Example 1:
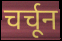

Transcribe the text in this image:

चर्चून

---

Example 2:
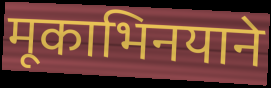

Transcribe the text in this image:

मूकाभिनयाने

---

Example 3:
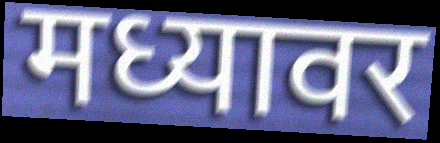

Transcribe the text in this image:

मध्यावर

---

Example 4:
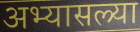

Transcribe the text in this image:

अभ्यासल्या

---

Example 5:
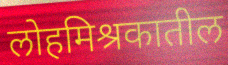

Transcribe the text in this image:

लोहमिश्रकातील